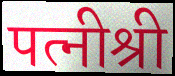
पत्नीश्री